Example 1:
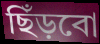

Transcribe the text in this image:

ছিঁড়বো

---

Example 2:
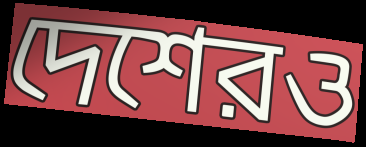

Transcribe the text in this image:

দেশেরও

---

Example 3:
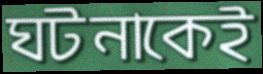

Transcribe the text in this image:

ঘটনাকেই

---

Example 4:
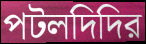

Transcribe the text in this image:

পটলদিদির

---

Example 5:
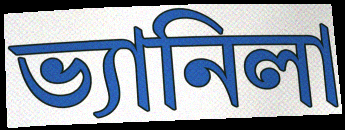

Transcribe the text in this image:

ভ্যানিলা